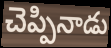
చెప్పినాడు